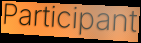
Participant